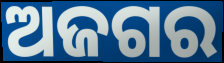
ଅଜଗର